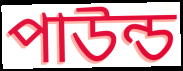
পাউন্ড